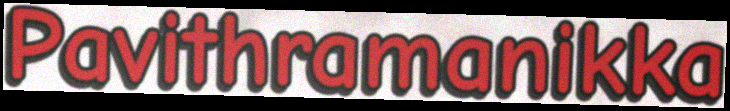
Pavithramanikka